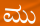
ಮು